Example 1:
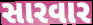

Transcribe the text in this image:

સારવાર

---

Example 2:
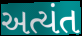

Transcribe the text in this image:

અત્યંત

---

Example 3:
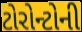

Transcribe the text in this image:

ટોરોન્ટોની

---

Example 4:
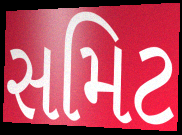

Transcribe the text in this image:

સમિટ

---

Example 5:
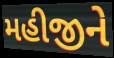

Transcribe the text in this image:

મહીજીને